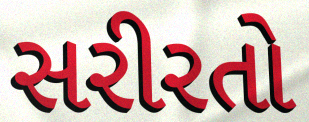
સરીરતો